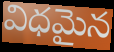
విధమైన